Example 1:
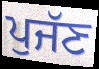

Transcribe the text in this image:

ਪੁਜੱਣ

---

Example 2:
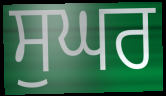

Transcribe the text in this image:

ਸੁਘਰ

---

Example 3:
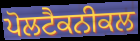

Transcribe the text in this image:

ਪੋਲਟੈਕਨੀਕਲ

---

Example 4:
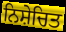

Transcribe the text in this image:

ਨਿਸ਼ੇਚਿਤ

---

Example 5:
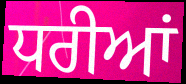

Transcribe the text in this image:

ਧਰੀਆਂ